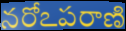
నరోఽపరాణి